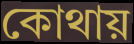
কোথায়